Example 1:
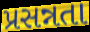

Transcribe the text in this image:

પ્રસન્નતા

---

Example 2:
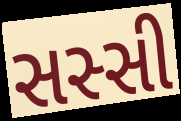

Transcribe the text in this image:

સસ્સી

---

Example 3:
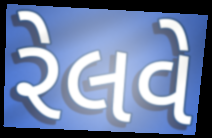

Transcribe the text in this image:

રેલવે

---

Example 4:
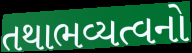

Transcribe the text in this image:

તથાભવ્યત્વનો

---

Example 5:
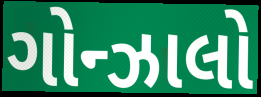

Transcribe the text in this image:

ગોન્ઝાલો